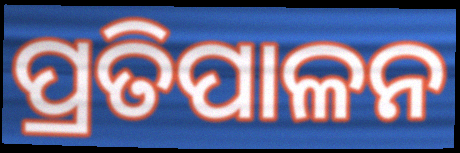
ପ୍ରତିପାଳନ